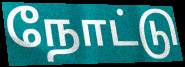
நோட்டு